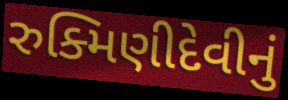
રુક્મિણીદેવીનું